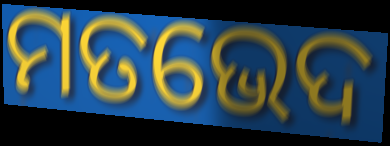
ମତଭେଦ